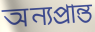
অন্যপ্রান্ত